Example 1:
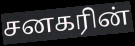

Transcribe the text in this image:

சனகரின்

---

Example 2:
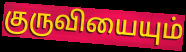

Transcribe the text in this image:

குருவியையும்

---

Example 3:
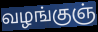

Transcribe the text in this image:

வழங்குஞ்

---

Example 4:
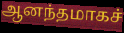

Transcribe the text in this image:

ஆனந்தமாகச்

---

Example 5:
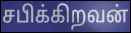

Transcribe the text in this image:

சபிக்கிறவன்